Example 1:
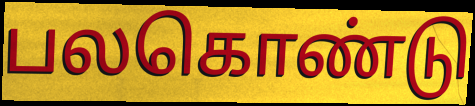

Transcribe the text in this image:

பலகொண்டு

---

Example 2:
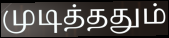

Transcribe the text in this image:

முடித்ததும்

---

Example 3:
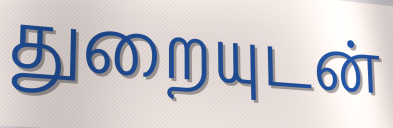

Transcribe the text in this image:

துறையுடன்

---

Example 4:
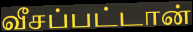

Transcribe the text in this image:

வீசப்பட்டான்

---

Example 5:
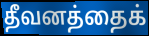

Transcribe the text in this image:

தீவனத்தைக்